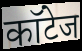
कॉटेज